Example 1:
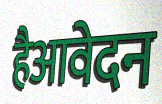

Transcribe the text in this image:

हैआवेदन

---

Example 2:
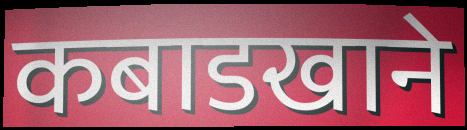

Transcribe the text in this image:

कबाडखाने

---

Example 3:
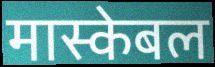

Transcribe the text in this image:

मास्केबल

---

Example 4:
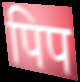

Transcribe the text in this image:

पिप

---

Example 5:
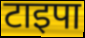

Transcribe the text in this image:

टाइपा